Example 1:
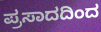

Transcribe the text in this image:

ಪ್ರಸಾದದಿಂದ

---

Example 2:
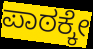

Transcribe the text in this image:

ಪಾಠಕ್ಕೇ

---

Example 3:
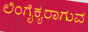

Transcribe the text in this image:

ಲಿಂಗೈಕ್ಯರಾಗುವ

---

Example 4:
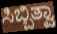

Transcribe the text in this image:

ಸಿಬ್ಬಿತ್ವಾ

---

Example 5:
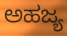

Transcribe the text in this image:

ಅಹಜ್ಯ